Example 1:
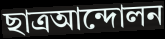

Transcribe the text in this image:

ছাত্রআন্দোলন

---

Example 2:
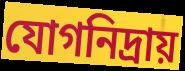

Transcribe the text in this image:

যোগনিদ্রায়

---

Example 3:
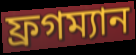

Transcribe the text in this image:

ফ্রগম্যান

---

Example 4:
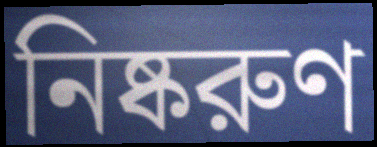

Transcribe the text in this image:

নিষ্করুণ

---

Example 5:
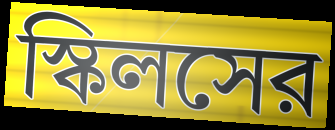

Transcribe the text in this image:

স্কিলসের